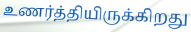
உணர்த்தியிருக்கிறது